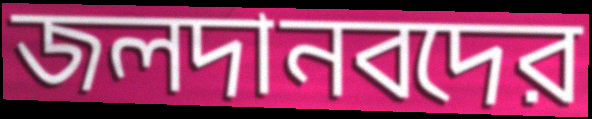
জলদানবদের